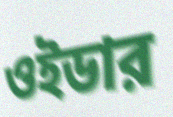
ওইডার